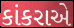
કાંકરાએ